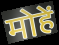
मोहें